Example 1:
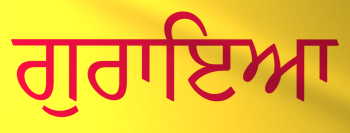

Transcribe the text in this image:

ਗੁਰਾਇਆ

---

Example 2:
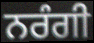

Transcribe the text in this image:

ਨਰੰਗੀ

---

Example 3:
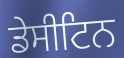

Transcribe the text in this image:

ਡੇਸੀਟਿਨ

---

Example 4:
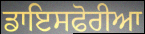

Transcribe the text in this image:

ਡਾਇਸਫੋਰੀਆ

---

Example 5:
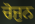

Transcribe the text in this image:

ਚੋਜੁਨ